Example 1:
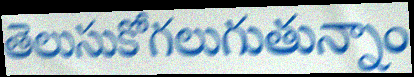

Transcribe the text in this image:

తెలుసుకోగలుగుతున్నాం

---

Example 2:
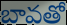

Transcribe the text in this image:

బావతో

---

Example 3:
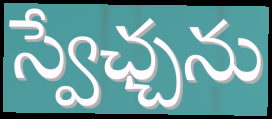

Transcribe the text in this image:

స్వేఛ్చను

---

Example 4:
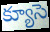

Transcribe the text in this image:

క్యూసె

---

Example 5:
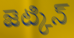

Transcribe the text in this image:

జెట్కిన్